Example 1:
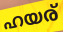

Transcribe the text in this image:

ഹയര്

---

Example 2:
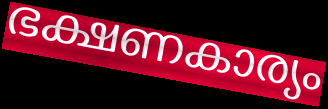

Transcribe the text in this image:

ഭക്ഷണകാര്യം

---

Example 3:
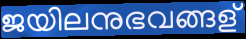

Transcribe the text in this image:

ജയിലനുഭവങ്ങള്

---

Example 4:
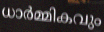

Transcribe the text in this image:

ധാർമ്മികവും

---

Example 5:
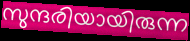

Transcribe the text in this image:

സുന്ദരിയായിരുന്ന